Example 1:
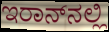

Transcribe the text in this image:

ಇರಾನ್‌ನಲ್ಲಿ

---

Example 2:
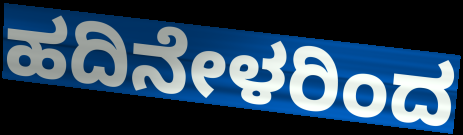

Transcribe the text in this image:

ಹದಿನೇಳರಿಂದ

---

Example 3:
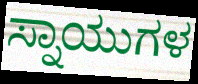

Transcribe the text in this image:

ಸ್ನಾಯುಗಳ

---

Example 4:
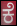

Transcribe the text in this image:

ಕೆ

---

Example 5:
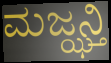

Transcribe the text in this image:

ಮಜ್ಝನ್ತಿ